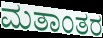
ಮತಾಂತರ